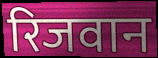
रिजवान